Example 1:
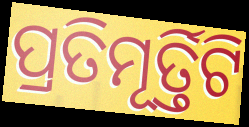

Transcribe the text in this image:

ପ୍ରତିମୂର୍ତ୍ତିଟି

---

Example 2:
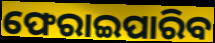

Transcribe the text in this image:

ଫେରାଇପାରିବ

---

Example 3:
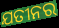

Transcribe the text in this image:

ଯତୀନର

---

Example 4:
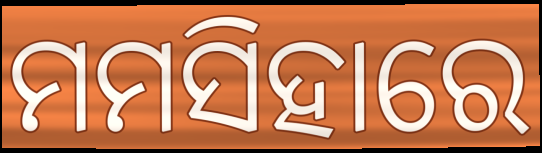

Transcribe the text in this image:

ମମସିହାରେ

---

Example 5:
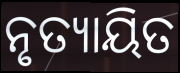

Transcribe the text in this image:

ନୃତ୍ୟାୟିତ